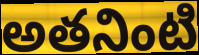
అతనింటి